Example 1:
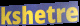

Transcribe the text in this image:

kshetre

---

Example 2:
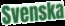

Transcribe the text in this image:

Svenska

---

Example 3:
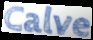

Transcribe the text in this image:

Calve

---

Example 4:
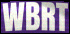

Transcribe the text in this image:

WBRT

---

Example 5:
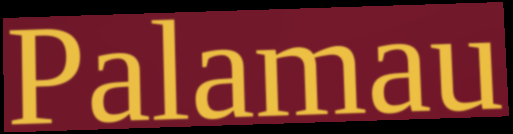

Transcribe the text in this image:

Palamau